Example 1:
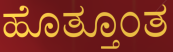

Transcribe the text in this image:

ಹೊತ್ತೂಂತ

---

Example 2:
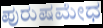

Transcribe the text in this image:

ಪುರುಷಮೇಧ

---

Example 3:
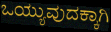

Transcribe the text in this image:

ಒಯ್ಯುವುದಕ್ಕಾಗಿ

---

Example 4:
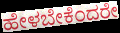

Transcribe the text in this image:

ಹೇಳಬೇಕೆಂದರೇ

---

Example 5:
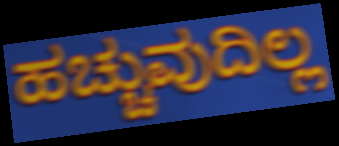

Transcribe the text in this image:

ಹಚ್ಚುವುದಿಲ್ಲ